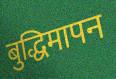
बुद्धिमापन